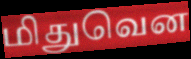
மிதுவென